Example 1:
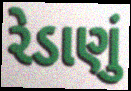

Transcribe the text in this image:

રેડાણું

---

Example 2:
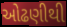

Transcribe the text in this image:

ઓઢણીથી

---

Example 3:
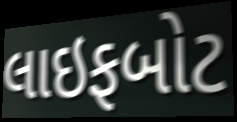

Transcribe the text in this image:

લાઇફબોટ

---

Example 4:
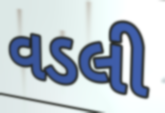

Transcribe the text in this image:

વડલી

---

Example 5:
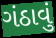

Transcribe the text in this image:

ગંઠાવું